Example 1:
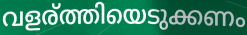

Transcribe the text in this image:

വളര്ത്തിയെടുക്കണം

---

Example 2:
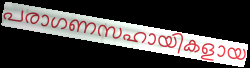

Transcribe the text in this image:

പരാഗണസഹായികളായ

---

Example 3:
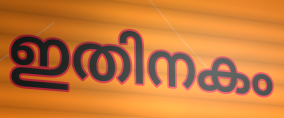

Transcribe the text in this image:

ഇതിനകം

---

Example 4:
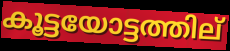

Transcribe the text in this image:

കൂട്ടയോട്ടത്തില്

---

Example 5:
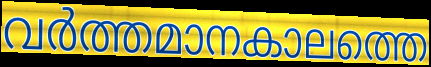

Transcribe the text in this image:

വർത്തമാനകാലത്തെ